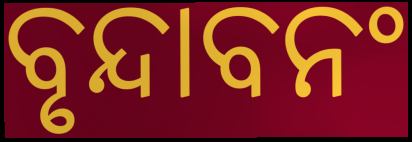
ବୃନ୍ଦାବନଂ